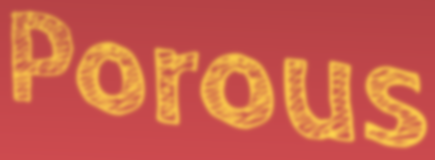
Porous